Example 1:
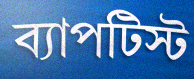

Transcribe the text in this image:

ব্যাপটিস্ট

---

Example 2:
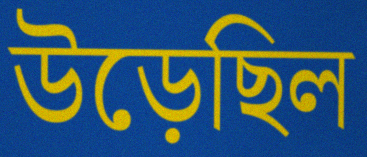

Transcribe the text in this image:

উড়েছিল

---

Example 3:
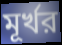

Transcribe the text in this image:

মূর্খর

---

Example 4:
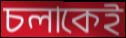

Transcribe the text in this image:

চলাকেই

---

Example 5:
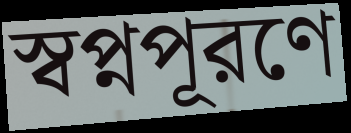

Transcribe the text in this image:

স্বপ্নপূরণে